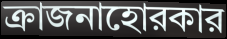
ক্রাজনাহোরকার